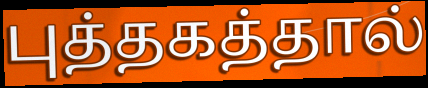
புத்தகத்தால்